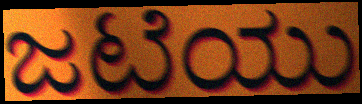
ಜಟೆಯು